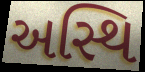
અસ્થિ